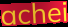
achei